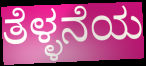
ತೆಳ್ಳನೆಯ